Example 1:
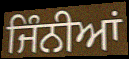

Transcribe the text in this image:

ਜਿੰਨੀਆਂ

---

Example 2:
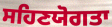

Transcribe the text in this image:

ਸਹਿਣਯੋਗਤਾ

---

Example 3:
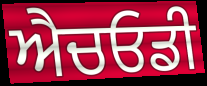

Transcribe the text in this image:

ਐਚਓਡੀ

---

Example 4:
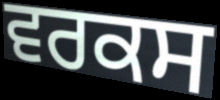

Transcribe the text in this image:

ਵਰਕਸ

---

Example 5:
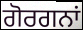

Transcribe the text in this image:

ਗੋਰਗਨਾਂ